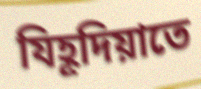
যিহূদিয়াতে